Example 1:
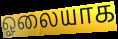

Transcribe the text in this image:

ஓலையாக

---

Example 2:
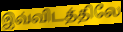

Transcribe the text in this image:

இவ்விடத்திலே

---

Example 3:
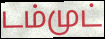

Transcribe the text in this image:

டம்முட்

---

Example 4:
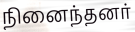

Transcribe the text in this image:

நினைந்தனர்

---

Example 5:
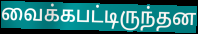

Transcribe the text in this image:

வைக்கபட்டிருந்தன